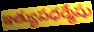
ఇత్యుపధర్మేషు